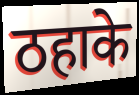
ठहाके